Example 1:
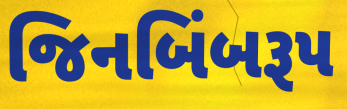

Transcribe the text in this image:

જિનબિંબરૂપ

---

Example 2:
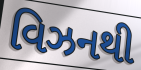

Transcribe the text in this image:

વિઝનથી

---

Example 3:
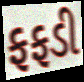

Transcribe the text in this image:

ફફડી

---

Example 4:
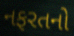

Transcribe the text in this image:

નફરતનો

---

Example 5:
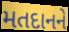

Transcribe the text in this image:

મતદાનને